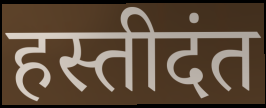
हस्तीदंत